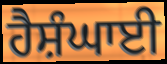
ਹੈਸ਼ੰਘਾਈ